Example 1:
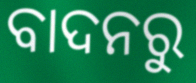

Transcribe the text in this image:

ବାଦନରୁ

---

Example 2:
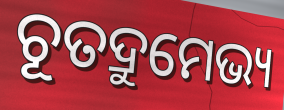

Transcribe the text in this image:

ଚୂତଦ୍ରୁମେଭ୍ୟ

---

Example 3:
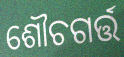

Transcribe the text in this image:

ଶୌଚଗର୍ତ୍ତ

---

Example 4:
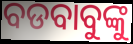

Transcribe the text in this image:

ବଡବାବୁଙ୍କୁ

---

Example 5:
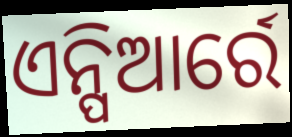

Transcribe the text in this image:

ଏନ୍ପିଆର୍ରେ